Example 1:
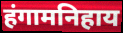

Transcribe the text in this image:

हंगामनिहाय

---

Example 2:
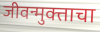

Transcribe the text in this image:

जीवन्मुक्ताचा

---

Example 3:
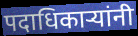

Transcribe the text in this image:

पदाधिकार्‍यांनी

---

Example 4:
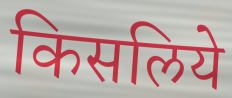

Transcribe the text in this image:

किसलिये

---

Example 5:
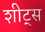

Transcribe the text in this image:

शीट्स